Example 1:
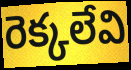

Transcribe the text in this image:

రెక్కలేవి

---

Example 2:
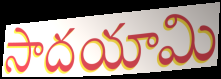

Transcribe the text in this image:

సాదయామి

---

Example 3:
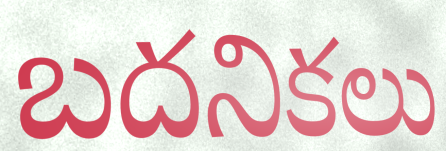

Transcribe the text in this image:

బదనికలు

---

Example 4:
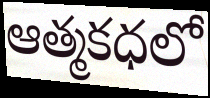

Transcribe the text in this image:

ఆత్మకధలో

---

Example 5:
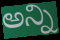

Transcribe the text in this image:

అన్ని